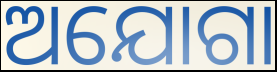
ଅଯୋଗା